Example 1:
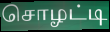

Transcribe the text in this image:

சொழட்டி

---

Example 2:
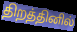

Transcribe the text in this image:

திறத்தினில்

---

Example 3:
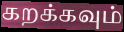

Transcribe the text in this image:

கறக்கவும்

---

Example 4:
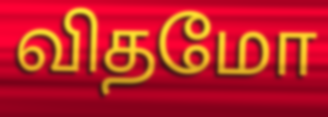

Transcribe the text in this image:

விதமோ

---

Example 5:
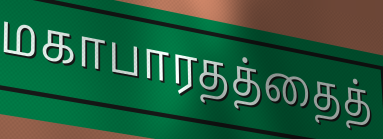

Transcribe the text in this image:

மகாபாரதத்தைத்